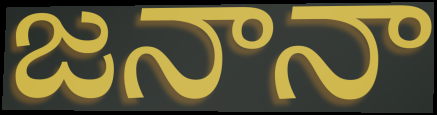
జనానా